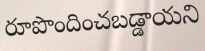
రూపొందించబడ్డాయని